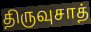
திருவுசாத்